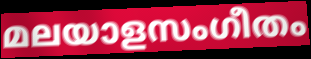
മലയാളസംഗീതം